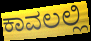
ಕಾವಲಲ್ಲಿ